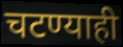
चटण्याही